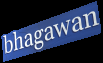
bhagawan